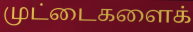
முட்டைகளைக்